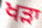
ਖੜਾ